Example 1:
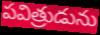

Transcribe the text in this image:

పవిత్రుడును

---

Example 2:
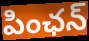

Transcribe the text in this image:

పింఛన్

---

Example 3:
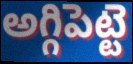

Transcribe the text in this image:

అగ్గిపెట్టె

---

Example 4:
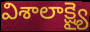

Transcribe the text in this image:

విశాలాక్ష్యై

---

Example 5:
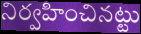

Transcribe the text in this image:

నిర్వహించినట్టు